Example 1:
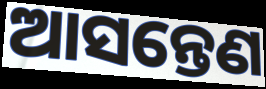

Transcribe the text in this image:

ଆସନ୍ତେଣ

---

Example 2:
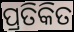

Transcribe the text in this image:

ପ୍ରତିକିତ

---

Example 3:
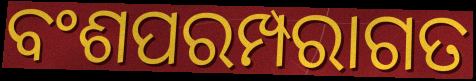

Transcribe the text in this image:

ବଂଶପରମ୍ପରାଗତ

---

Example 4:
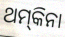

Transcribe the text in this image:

ଥମ୍‍କିନା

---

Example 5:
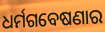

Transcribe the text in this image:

ଧର୍ମଗବେଷଣାର